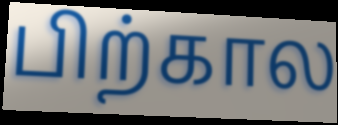
பிற்கால